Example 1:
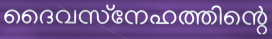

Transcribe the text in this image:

ദൈവസ്‌നേഹത്തിന്റെ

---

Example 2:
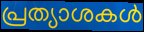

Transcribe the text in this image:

പ്രത്യാശകൾ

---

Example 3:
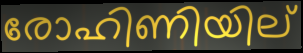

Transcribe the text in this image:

രോഹിണിയില്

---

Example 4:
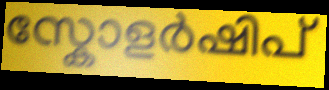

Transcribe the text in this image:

സ്കോളർഷിപ്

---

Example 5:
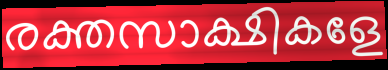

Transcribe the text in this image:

രക്തസാക്ഷികളേ